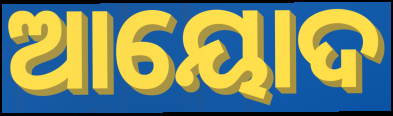
ଆୟୋଦ